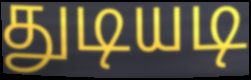
துடியடி